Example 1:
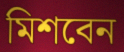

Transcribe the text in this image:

মিশবেন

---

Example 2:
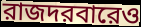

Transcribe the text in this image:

রাজদরবারেও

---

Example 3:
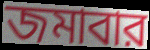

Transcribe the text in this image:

জমাবার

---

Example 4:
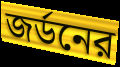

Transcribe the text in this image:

জর্ডনের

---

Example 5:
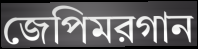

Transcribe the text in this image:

জেপিমরগান